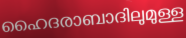
ഹൈദരാബാദിലുമുള്ള